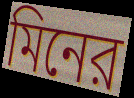
মিনের